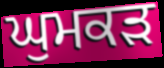
ਘੁਮਕੜ